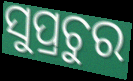
ସୁପ୍ରଚୁର